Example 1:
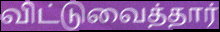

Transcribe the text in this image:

விட்டுவைத்தார்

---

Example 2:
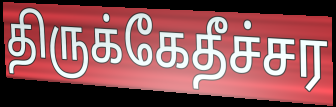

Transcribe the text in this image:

திருக்கேதீச்சர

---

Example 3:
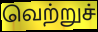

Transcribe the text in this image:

வெற்றுச்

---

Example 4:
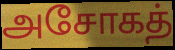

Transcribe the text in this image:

அசோகத்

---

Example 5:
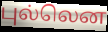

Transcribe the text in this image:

புல்லென